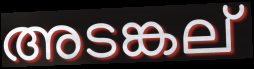
അടങ്കല്